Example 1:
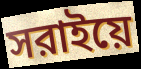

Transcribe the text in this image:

সরাইয়ে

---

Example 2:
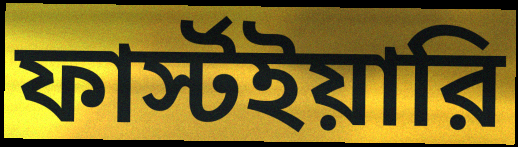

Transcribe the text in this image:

ফার্স্টইয়ারি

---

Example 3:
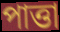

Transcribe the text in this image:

পাত্তা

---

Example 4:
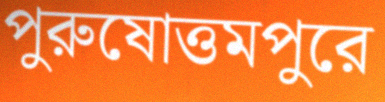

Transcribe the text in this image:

পুরুষোত্তমপুরে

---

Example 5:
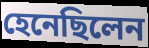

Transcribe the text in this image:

হেনেছিলেন